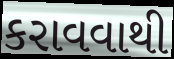
કરાવવાથી